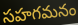
సహగమనం